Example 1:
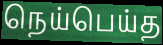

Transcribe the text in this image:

நெய்பெய்த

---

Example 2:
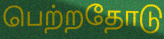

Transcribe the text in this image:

பெற்றதோடு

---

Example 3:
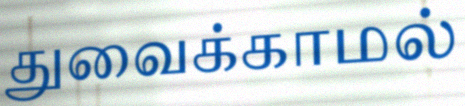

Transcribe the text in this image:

துவைக்காமல்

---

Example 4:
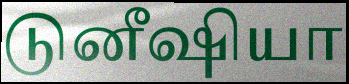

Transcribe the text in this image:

டுனீஷியா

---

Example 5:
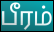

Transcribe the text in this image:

பீரம்